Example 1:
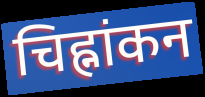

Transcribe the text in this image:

चिह्नांकन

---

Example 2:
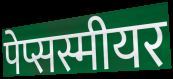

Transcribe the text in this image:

पेप्सस्मीयर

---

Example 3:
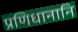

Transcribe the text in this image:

प्रणिधानानि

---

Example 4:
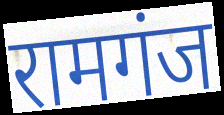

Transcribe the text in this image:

रामगंज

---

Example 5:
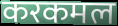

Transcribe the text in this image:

करकमल